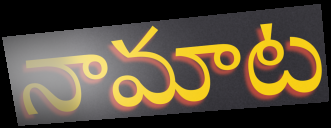
నామాట